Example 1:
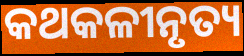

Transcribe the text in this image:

କଥକଳୀନୃତ୍ୟ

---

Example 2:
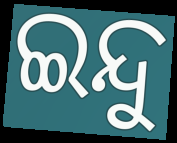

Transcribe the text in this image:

ଇନ୍ଦୁ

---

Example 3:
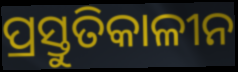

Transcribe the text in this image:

ପ୍ରସ୍ତୁତିକାଳୀନ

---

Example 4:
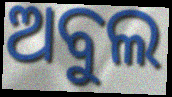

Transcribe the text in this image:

ଅବୁଲ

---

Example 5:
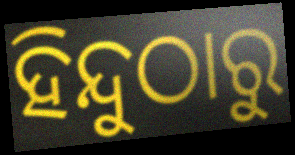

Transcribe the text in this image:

ହିନ୍ଦୁଠାରୁ